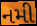
નમી